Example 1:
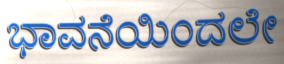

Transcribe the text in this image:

ಭಾವನೆಯಿಂದಲೇ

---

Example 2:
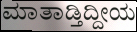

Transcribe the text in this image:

ಮಾತಾಡ್ತಿದ್ದೀಯ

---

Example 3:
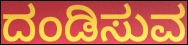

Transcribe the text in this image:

ದಂಡಿಸುವ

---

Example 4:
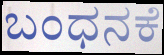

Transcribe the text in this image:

ಬಂಧನಕೆ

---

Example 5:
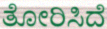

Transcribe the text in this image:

ತೋರಿಸಿದೆ